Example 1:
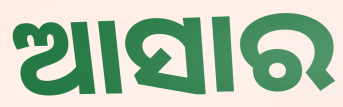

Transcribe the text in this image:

ଆସାର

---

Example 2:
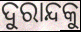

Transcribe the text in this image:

ଦୁରାନ୍ଦକୁ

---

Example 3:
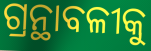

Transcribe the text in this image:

ଗ୍ରନ୍ଥାବଳୀକୁ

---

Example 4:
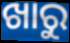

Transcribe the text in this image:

ଖାରୁ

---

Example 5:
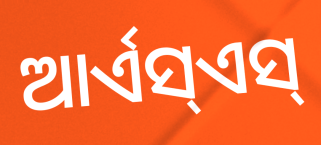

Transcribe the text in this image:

ଆର୍ଏସ୍ଏସ୍